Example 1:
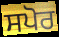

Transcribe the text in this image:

ਸਪੋਰ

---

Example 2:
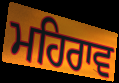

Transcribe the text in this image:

ਮਹਿਰਾਵ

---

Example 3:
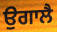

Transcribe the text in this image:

ਉਗਾਲੈ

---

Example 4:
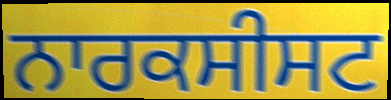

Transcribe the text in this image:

ਨਾਰਕਸੀਸਟ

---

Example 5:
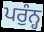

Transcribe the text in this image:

ਪਰੁੰਨ੍ਹ